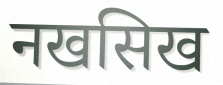
नखसिख